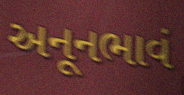
અનૂનભાવં